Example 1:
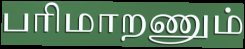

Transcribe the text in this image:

பரிமாறணும்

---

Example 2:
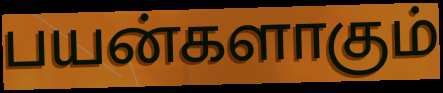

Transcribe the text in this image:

பயன்களாகும்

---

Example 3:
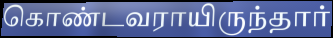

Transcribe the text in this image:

கொண்டவராயிருந்தார்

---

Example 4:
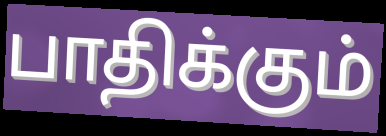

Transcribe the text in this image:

பாதிக்கும்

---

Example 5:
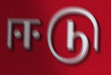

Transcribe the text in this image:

ஈடு